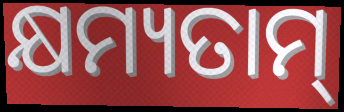
କ୍ଷମ୍ୟତାମ୍